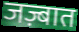
जज़्बात